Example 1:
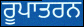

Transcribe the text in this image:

ਰੂਪਾਤਰਨ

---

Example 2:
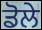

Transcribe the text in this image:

ਡੋਲੇ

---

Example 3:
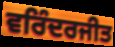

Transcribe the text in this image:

ਵਰਿੰਦਰਜੀਤ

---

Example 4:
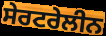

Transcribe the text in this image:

ਸੇਰਟਰੇਲੀਨ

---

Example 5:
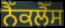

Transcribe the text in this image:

ਨੈੱਕਲੈੱਸ